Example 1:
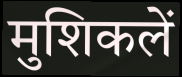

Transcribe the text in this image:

मुशिकलें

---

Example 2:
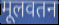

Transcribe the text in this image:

मूलवतन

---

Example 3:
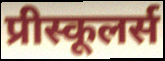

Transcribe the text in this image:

प्रीस्कूलर्स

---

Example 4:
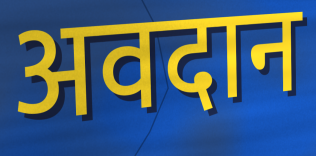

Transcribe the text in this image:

अवदान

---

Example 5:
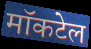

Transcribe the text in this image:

मॉकटेल